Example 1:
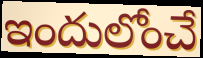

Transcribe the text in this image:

ఇందులోంచే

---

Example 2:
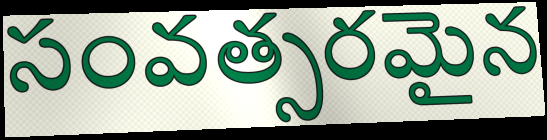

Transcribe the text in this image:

సంవత్సరమైన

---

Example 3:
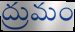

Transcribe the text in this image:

ద్రుమం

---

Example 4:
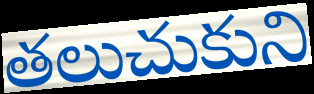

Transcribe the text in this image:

తలుచుకుని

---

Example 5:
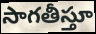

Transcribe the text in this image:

సాగతీస్తూ